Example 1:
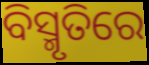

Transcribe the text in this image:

ବିସ୍ମୃତିରେ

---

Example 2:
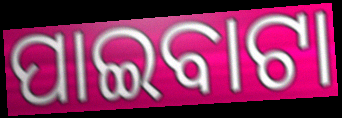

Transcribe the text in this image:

ପାଇବାଟା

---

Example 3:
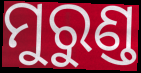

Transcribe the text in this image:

ମୁରୁଣ୍ଡ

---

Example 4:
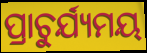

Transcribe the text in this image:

ପ୍ରାଚୁର୍ଯ୍ୟମୟ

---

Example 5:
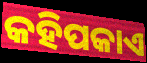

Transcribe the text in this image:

କହିପକାଏ